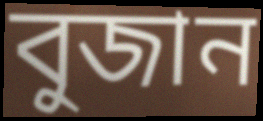
বুজান